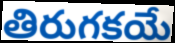
తిరుగకయే